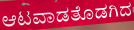
ಆಟವಾಡತೊಡಗಿದ